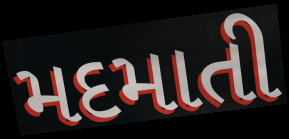
મદમાતી